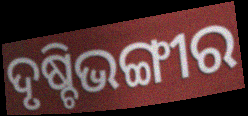
ଦୃଷ୍ଚିଭଙ୍ଗୀର